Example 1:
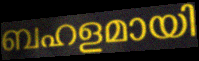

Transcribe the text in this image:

ബഹളമായി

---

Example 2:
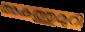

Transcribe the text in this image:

അകത്തുമുറി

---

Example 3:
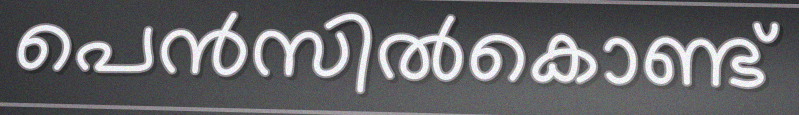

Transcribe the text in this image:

പെൻസിൽകൊണ്ട്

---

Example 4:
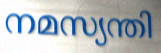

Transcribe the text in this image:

നമസ്യന്തി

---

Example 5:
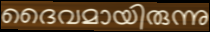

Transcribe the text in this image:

ദൈവമായിരുന്നു